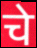
चे